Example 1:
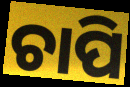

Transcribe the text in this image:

ଚାପି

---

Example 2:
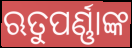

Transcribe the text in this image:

ଋତୁପର୍ଣ୍ଣାଙ୍କ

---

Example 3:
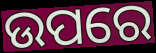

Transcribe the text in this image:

ଉପରେ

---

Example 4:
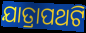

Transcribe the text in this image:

ଯାତ୍ରାପଥଟି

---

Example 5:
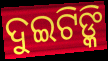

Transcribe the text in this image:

ଦୁଇଟିଙ୍କି